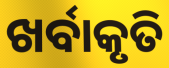
ଖର୍ବାକୃତି